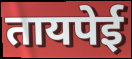
तायपेई